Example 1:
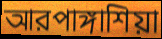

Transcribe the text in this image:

আরপাঙ্গাশিয়া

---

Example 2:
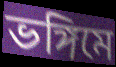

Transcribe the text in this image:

ভঙ্গিমে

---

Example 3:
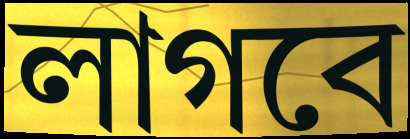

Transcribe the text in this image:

লাগবে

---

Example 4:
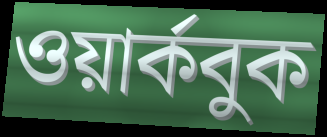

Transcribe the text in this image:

ওয়ার্কবুক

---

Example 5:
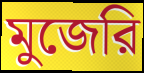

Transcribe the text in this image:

মুজেরি